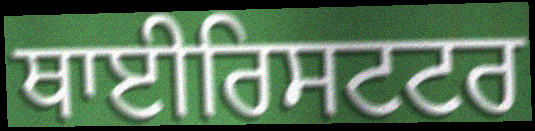
ਥਾਈਰਿਸਟਟਰ